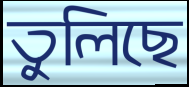
তুলিছে